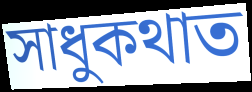
সাধুকথাত